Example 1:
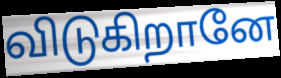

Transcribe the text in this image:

விடுகிறானே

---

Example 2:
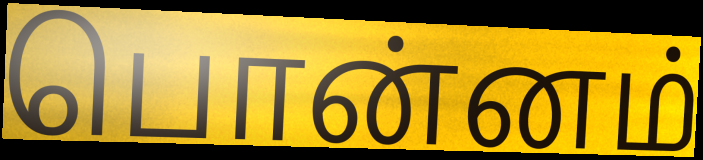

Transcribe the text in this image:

பொன்னம்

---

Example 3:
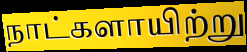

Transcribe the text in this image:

நாட்களாயிற்று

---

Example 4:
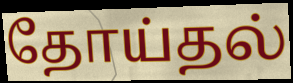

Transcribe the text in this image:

தோய்தல்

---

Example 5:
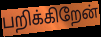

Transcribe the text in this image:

பறிக்கிறேன்